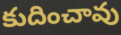
కుదించావు